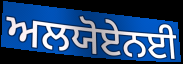
ਅਲਯੋਏਨਈ